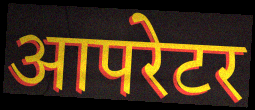
आपरेटर